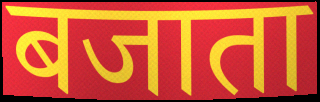
बजाता